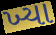
ખ્યા